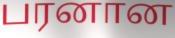
பரனான